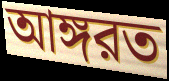
আঙ্গরত